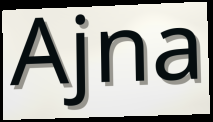
Ajna